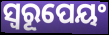
ସ୍ୱରୂପେୟଂ